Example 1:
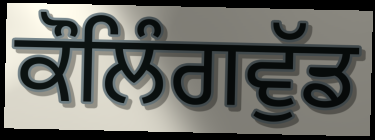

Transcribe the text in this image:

ਕੌਲਿੰਗਵੁੱਡ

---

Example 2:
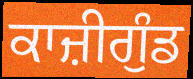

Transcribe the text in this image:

ਕਾਜ਼ੀਗੁੰਡ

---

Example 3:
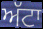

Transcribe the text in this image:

ਅੱਟਾ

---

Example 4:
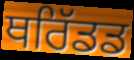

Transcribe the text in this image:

ਥਰਿੱਡਡ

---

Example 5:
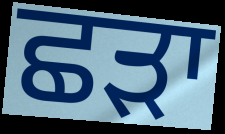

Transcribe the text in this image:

ਛਡ਼ਾ